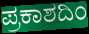
ಪ್ರಕಾಶದಿಂ